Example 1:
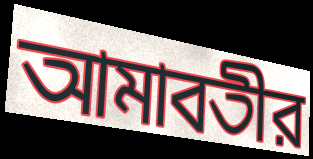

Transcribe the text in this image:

আমাবতীর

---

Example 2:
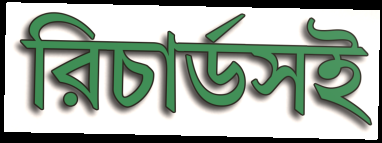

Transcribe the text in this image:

রিচার্ডসই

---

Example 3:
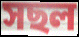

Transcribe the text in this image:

সছল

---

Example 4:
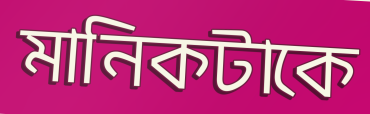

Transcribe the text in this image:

মানিকটাকে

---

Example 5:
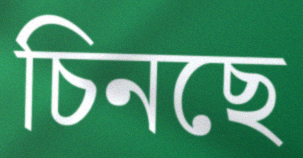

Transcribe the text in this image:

চিনছে